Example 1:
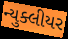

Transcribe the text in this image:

ન્યુક્લીયર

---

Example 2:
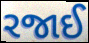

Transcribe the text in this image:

રજાઈ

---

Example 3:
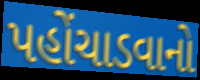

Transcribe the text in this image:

પહોંચાડવાનો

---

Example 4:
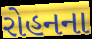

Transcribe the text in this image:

રોહનના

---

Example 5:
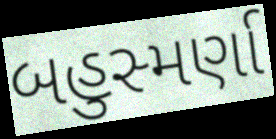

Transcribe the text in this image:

બહુસ્મર્ણા